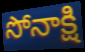
సోనాక్షి